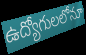
ఉద్యోగులలోనూ